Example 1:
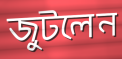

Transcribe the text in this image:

জুটলেন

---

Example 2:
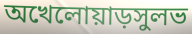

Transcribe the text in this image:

অখেলোয়াড়সুলভ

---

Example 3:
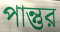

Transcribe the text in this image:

পান্তুর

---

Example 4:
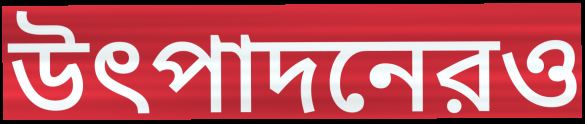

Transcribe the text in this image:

উৎপাদনেরও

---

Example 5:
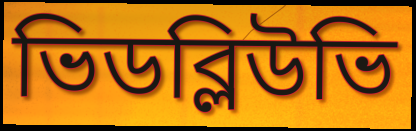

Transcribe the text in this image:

ভিডব্লিউভি